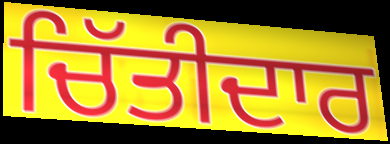
ਚਿੱਤੀਦਾਰ